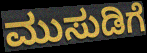
ಮುಸುಡಿಗೆ